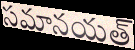
సమానయత్